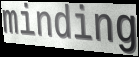
minding